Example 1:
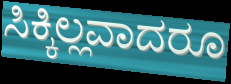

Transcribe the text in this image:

ಸಿಕ್ಕಿಲ್ಲವಾದರೂ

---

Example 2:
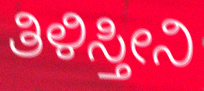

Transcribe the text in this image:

ತಿಳಿಸ್ತೀನಿ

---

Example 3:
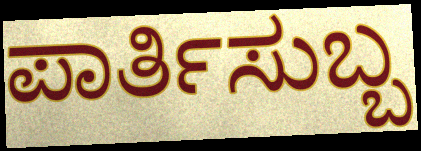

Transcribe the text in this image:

ಪಾರ್ತಿಸುಬ್ಬ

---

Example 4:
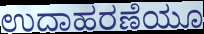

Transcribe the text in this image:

ಉದಾಹರಣೆಯೂ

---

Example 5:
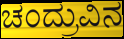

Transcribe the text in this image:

ಚಂದ್ರುವಿನ